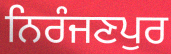
ਨਿਰੰਜਣਪੁਰ